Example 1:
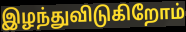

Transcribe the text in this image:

இழந்துவிடுகிறோம்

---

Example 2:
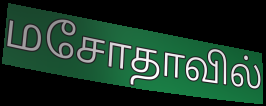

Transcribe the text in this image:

மசோதாவில்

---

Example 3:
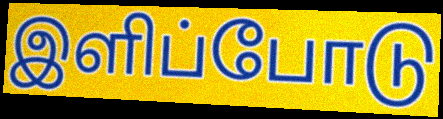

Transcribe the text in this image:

இளிப்போடு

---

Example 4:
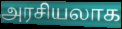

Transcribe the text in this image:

அரசியலாக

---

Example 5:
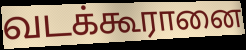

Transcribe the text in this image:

வடக்கூரானை